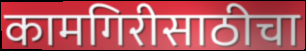
कामगिरीसाठीचा